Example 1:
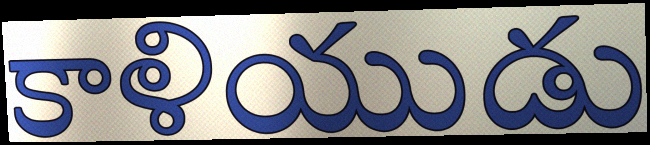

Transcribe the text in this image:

కాళియుడు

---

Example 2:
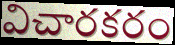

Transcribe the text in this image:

విచారకరం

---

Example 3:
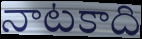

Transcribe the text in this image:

నాటకాది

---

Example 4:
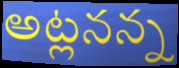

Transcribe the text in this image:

అట్లనన్న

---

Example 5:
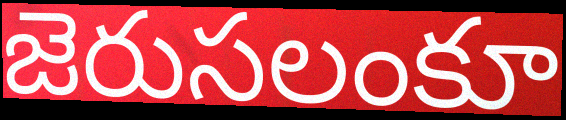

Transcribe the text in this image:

జెరుసలంకూ